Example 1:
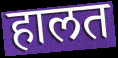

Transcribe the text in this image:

हालत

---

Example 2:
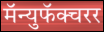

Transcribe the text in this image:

मॅन्युफॅक्चरर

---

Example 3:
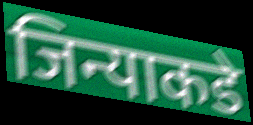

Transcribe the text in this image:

जिन्याकडे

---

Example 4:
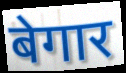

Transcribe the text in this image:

बेगार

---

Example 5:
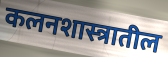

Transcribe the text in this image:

कलनशास्त्रातील